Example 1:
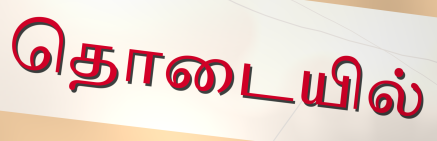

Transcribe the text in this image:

தொடையில்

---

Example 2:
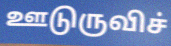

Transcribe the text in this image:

ஊடுருவிச்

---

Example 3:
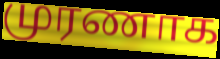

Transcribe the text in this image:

முரணாக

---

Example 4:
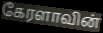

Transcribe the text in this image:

கேரளாவின்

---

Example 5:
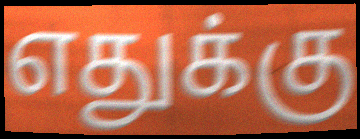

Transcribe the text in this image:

எதுக்கு